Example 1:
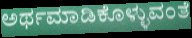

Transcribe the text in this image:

ಅರ್ಥಮಾಡಿಕೊಳ್ಳುವಂತೆ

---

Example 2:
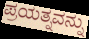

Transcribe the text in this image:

ಪ್ರಯತ್ನವನ್ನು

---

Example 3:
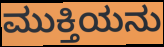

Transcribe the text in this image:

ಮುಕ್ತಿಯನು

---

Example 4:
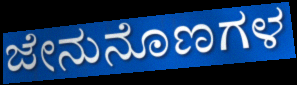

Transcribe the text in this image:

ಜೇನುನೊಣಗಳ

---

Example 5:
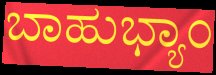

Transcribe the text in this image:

ಬಾಹುಭ್ಯಾಂ